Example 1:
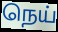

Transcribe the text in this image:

நெய்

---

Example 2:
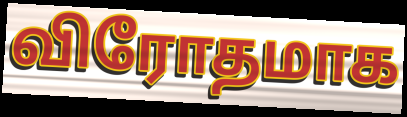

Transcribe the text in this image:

விரோதமாக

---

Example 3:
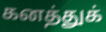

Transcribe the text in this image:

கனத்துக்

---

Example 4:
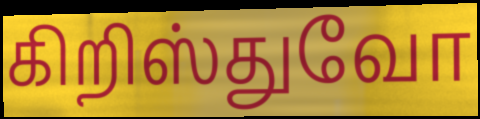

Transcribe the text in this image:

கிறிஸ்துவோ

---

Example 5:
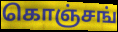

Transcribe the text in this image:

கொஞ்சங்